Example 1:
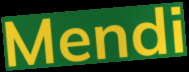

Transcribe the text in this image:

Mendi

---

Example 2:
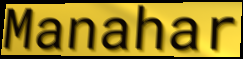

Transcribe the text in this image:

Manahar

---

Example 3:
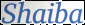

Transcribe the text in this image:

Shaiba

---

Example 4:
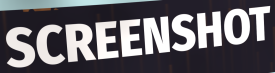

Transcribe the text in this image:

SCREENSHOT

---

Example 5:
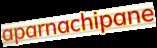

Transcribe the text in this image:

aparnachipane